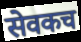
सेवकच